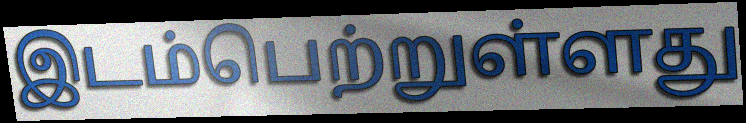
இடம்பெற்றுள்ளது